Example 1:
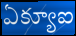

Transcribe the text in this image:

ఏక్యూఐ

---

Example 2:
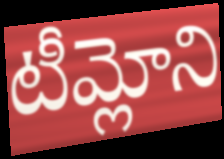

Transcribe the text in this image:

టీమ్లోని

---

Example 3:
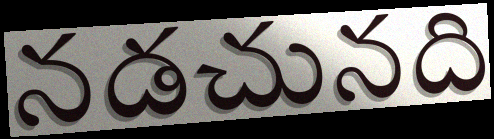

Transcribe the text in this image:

నడచునది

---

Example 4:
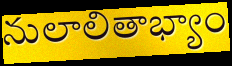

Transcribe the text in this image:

నులాలితాభ్యాం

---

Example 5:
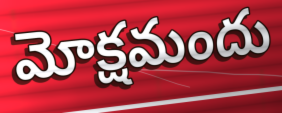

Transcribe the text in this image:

మోక్షమందు